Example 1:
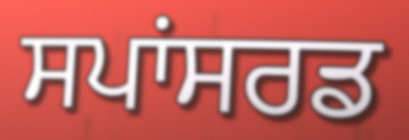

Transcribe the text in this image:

ਸਪਾਂਸਰਡ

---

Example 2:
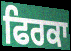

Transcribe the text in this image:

ਫਿਰਕਾ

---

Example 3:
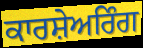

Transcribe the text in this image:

ਕਾਰਸ਼ੇਅਰਿੰਗ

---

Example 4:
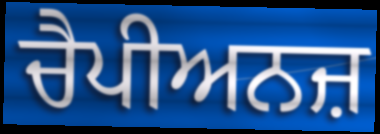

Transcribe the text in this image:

ਚੈਪੀਅਨਜ਼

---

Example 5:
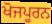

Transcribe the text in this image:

ਖੋਜਪੂਰਨ